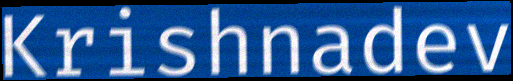
Krishnadev